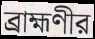
ব্রাহ্মণীর